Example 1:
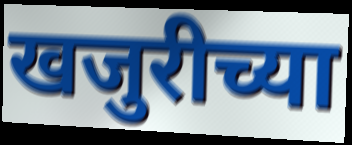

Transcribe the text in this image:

खजुरीच्या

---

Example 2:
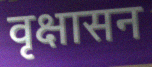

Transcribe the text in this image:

वृक्षासन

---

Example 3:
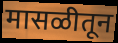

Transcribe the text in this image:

मासळीतून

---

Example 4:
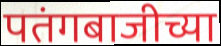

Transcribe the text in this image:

पतंगबाजीच्या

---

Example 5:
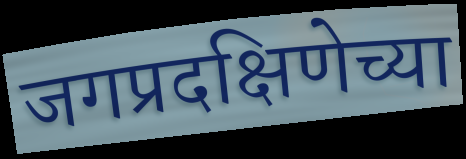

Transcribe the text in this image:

जगप्रदक्षिणेच्या